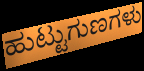
ಹುಟ್ಟುಗುಣಗಳು